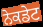
ਨੇਕਡੇਟ